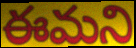
ఈమని